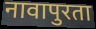
नावापुरता